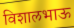
विशालभाऊ